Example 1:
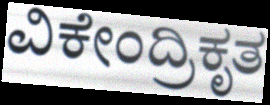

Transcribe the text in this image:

ವಿಕೇಂದ್ರಿಕೃತ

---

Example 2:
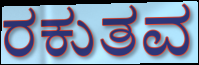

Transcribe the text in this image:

ರಕುತವ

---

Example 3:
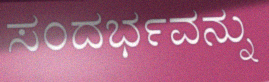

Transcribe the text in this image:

ಸಂದರ್ಭವನ್ನು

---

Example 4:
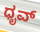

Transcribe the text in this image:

ಧೃವ್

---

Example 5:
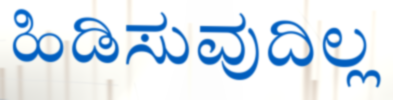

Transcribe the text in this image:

ಹಿಡಿಸುವುದಿಲ್ಲ